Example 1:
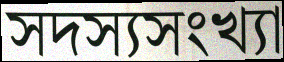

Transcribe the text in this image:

সদস্যসংখ্যা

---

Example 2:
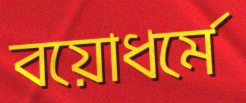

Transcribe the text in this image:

বয়োধর্মে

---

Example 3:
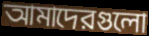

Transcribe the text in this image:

আমাদেরগুলো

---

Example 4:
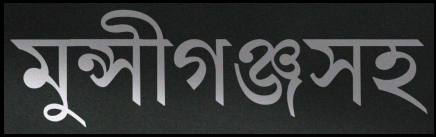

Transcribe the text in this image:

মুন্সীগঞ্জসহ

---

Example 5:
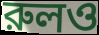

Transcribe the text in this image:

রুলও